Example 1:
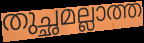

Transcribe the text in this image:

തുച്ഛമല്ലാത്ത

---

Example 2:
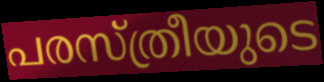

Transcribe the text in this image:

പരസ്ത്രീയുടെ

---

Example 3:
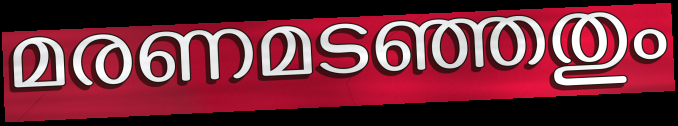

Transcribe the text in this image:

മരണമടഞ്ഞതും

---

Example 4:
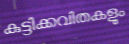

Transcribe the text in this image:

കുട്ടിക്കവിതകളും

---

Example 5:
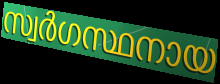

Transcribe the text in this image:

സ്വർഗസ്ഥനായ